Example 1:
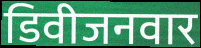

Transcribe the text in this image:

डिवीजनवार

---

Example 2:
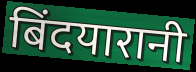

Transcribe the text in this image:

बिंदयारानी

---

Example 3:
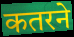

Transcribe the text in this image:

कतरने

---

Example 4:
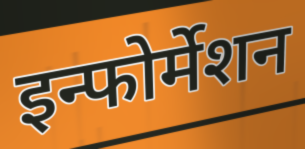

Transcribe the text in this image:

इन्फोर्मेशन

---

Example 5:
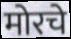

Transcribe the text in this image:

मोरचे